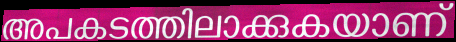
അപകടത്തിലാക്കുകയാണ്